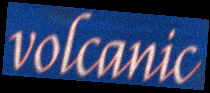
volcanic